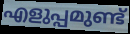
എളുപ്പമുണ്ട്